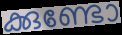
ക്കുണ്ടോ